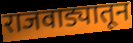
राजवाड्यातून